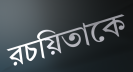
রচয়িতাকে